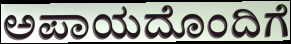
ಅಪಾಯದೊಂದಿಗೆ